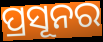
ପ୍ରସୂନର